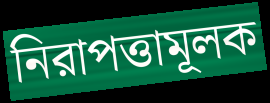
নিরাপত্তামূলক